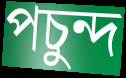
পচুন্দ